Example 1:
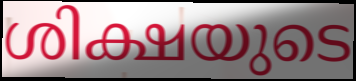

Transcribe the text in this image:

ശിക്ഷയുടെ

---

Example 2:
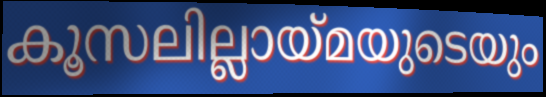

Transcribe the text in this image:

കൂസലില്ലായ്മയുടെയും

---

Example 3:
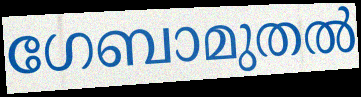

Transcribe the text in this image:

ഗേബാമുതൽ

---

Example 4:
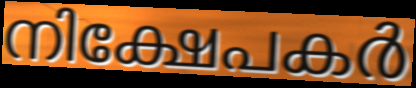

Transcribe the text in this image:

നിക്ഷേപകർ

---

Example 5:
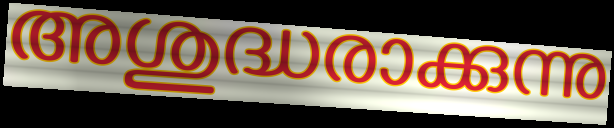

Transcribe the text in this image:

അശുദ്ധരാക്കുന്നു